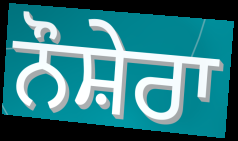
ਨੌਸ਼ੇਰਾ